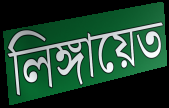
লিঙ্গায়েত